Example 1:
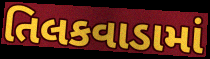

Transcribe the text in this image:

તિલકવાડામાં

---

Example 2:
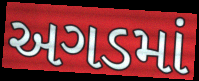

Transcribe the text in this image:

અગડમાં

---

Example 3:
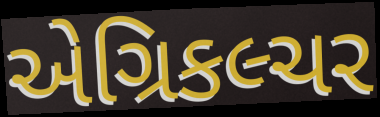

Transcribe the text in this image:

એગ્રિકલ્ચર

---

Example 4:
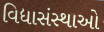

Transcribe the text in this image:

વિદ્યાસંસ્થાઓ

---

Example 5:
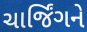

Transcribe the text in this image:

ચાર્જિંગને